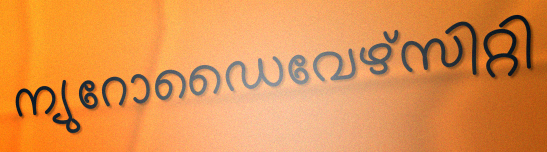
ന്യുറോഡൈവേഴ്സിറ്റി